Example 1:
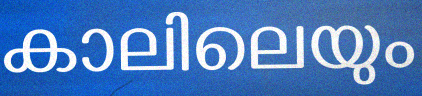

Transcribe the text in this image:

കാലിലെയും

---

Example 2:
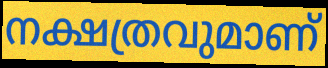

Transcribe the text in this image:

നക്ഷത്രവുമാണ്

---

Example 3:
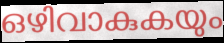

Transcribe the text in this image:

ഒഴിവാകുകയും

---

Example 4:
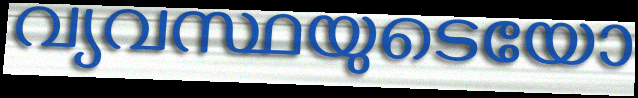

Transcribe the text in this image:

വ്യവസ്ഥയുടെയോ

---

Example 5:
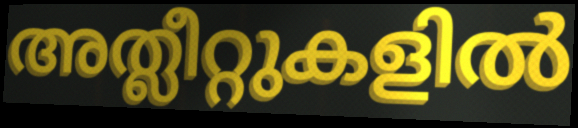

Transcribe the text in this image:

അത്ലീറ്റുകളിൽ